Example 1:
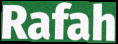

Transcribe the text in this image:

Rafah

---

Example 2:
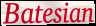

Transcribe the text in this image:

Batesian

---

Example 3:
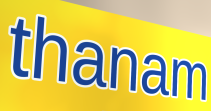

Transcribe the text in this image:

thanam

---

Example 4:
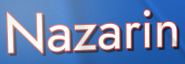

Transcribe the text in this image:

Nazarin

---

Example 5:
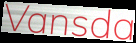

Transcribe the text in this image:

Vansda